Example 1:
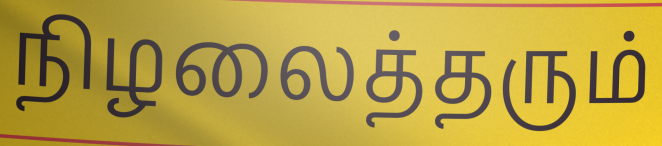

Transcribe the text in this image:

நிழலைத்தரும்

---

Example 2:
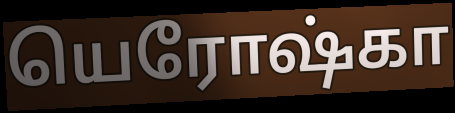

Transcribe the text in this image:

யெரோஷ்கா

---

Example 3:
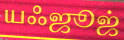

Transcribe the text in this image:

யஃஜூஜ்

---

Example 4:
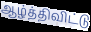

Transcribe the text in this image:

ஆழ்த்திவிட்டு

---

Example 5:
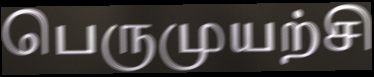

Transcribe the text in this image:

பெருமுயற்சி